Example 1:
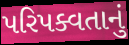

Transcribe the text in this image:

પરિપક્વતાનું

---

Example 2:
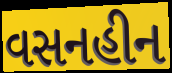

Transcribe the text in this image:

વસનહીન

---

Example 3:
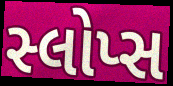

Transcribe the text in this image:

સ્લોપ્સ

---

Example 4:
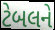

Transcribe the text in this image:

ટેબલને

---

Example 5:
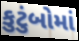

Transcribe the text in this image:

કુટુંબોમાં